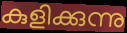
കുളിക്കുന്നു